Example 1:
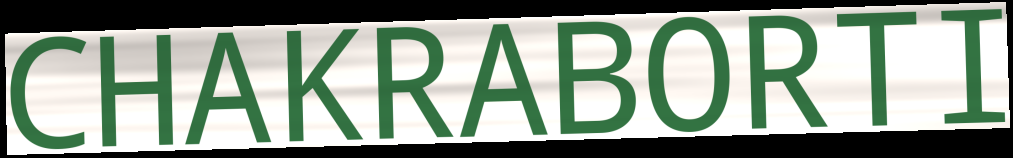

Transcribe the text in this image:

CHAKRABORTI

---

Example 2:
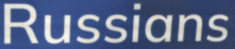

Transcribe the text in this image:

Russians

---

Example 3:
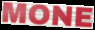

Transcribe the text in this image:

MONE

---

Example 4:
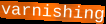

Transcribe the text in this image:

varnishing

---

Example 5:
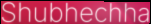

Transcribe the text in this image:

Shubhechha